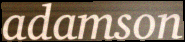
adamson